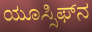
ಯೂಸ್ಸಿಫ್‌ನ